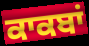
ਕਾਕਬਾਂ